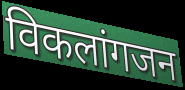
विकलांगजन